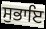
ਸੁਭਾਇ